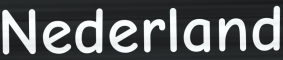
Nederland